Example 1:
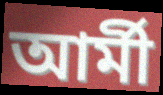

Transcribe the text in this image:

আৰ্মী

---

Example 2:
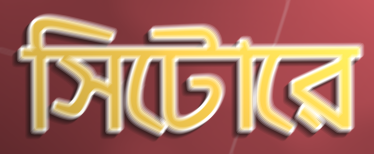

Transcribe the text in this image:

সিটোৱে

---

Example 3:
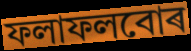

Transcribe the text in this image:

ফলাফলবোৰ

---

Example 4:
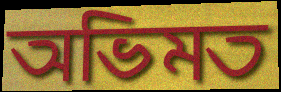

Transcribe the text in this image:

অভিমত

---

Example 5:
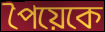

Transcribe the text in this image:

পৈয়েকে